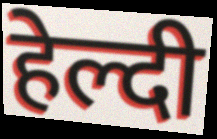
हेल्‍दी